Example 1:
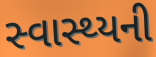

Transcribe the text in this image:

સ્વાસ્થ્યની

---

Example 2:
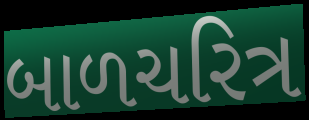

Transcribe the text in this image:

બાળચરિત્ર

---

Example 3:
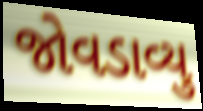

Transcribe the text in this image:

જોવડાવ્યુ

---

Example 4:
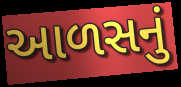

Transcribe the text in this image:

આળસનું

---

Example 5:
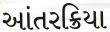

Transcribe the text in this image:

આંતરક્રિયા